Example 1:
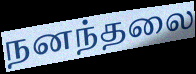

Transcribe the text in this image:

நனந்தலை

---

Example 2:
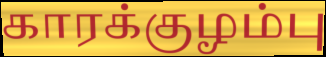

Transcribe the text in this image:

காரக்குழம்பு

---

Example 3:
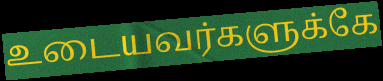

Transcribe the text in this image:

உடையவர்களுக்கே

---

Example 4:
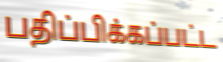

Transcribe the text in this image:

பதிப்பிக்கப்பட்ட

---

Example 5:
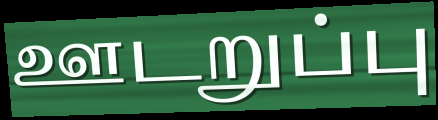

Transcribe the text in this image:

ஊடறுப்பு